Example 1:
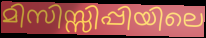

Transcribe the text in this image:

മിസിസ്സിപ്പിയിലെ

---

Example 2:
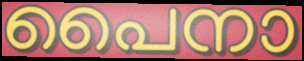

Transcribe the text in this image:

പൈനാ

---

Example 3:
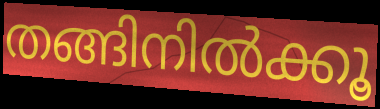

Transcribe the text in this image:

തങ്ങിനിൽക്കൂ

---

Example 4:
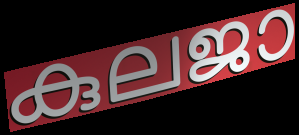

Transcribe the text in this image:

കുലജാ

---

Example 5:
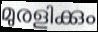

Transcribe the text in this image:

മുരളിക്കും